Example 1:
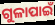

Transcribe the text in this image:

ଗୁଳାପାଇଁ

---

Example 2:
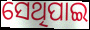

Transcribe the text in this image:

ସେଥିପାଇ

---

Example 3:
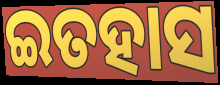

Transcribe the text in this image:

ଇତହାସ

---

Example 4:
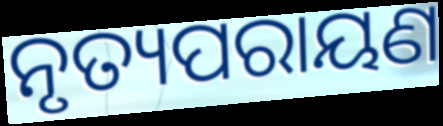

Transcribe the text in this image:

ନୃତ୍ୟପରାୟଣ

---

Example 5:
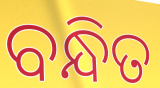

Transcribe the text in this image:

ବନ୍ଧିତ